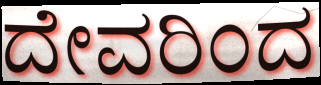
ದೇವರಿಂದ